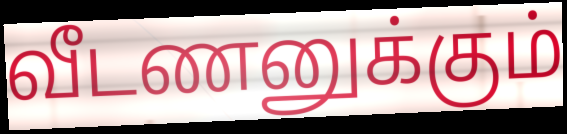
வீடணனுக்கும்